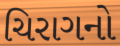
ચિરાગનો